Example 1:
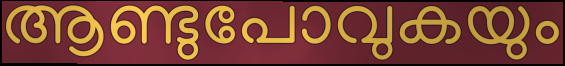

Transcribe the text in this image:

ആണ്ടുപോവുകയും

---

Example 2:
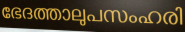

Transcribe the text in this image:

ഭേദത്താലുപസംഹരി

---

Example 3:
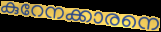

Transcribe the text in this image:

കുറേനക്കാരനെ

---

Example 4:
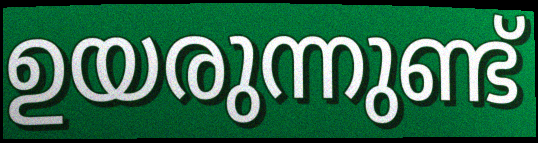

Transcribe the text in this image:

ഉയരുന്നുണ്ട്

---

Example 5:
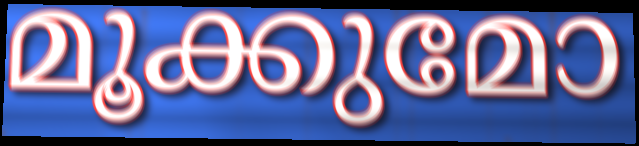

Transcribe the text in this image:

മൂക്കുമോ